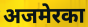
अजमेरका